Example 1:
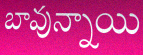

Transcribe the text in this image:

బావున్నాయి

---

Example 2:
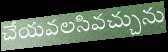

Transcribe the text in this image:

చేయవలసివచ్చును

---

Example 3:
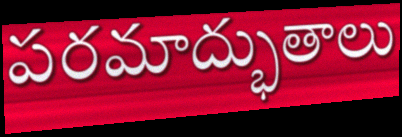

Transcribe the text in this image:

పరమాద్భుతాలు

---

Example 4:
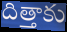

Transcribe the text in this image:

దిత్తాకు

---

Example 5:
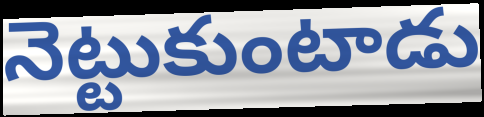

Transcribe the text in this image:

నెట్టుకుంటాడు